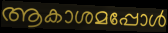
ആകാശമപ്പോൾ